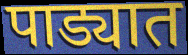
पाड्यात